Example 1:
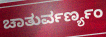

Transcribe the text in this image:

ಚಾತುರ್ವರ್ಣ್ಯಂ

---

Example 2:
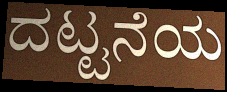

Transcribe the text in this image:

ದಟ್ಟನೆಯ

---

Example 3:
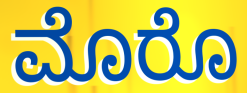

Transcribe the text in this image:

ಮೊರೊ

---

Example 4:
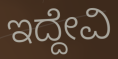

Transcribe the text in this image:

ಇದ್ದೇವಿ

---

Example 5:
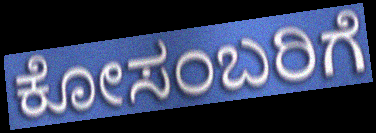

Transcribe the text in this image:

ಕೋಸಂಬರಿಗೆ